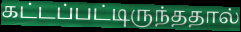
கட்டப்பட்டிருந்ததால்